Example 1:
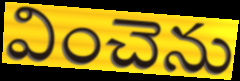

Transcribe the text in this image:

వించెను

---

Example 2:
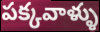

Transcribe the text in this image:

పక్కవాళ్ళు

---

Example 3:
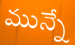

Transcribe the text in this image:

మున్నే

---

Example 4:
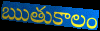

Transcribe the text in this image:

ఋతుకాలం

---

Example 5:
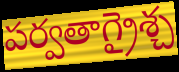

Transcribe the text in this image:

పర్వతాగ్రైశ్చ